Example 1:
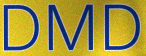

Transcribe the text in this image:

DMD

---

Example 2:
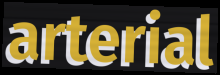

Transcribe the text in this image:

arterial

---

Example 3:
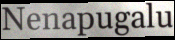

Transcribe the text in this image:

Nenapugalu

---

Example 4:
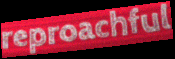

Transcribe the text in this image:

reproachful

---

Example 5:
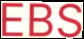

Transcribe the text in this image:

EBS